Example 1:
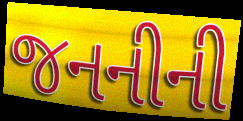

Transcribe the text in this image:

જનનીની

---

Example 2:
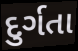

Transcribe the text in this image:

દુર્ગતા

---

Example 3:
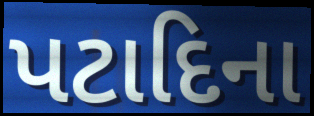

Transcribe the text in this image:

પટાદિના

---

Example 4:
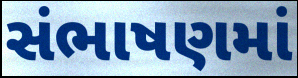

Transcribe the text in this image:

સંભાષણમાં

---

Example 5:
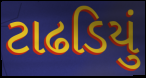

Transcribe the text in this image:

ટાઢડિયું